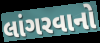
લાંગરવાનો